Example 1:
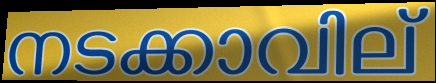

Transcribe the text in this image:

നടക്കാവില്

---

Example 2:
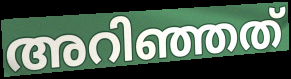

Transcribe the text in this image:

അറിഞ്ഞത്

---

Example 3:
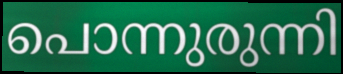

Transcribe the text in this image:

പൊന്നുരുന്നി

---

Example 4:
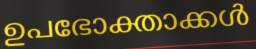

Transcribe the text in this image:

ഉപഭോക്താക്കൾ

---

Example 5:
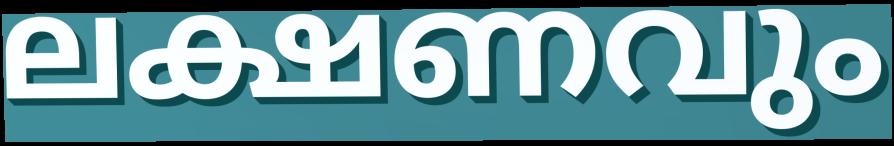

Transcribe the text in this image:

ലക്ഷണവും